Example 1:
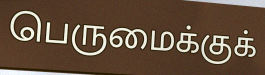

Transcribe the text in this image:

பெருமைக்குக்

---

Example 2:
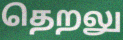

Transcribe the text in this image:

தெறலு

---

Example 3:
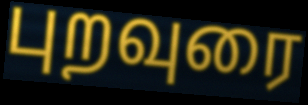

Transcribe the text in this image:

புறவுரை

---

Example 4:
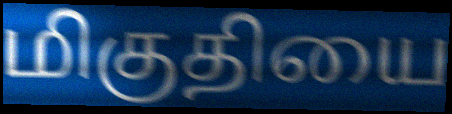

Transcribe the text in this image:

மிகுதியை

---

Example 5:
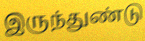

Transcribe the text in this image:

இருந்துண்டு